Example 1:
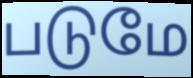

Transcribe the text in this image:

படுமே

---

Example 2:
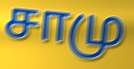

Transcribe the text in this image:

சாமு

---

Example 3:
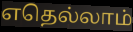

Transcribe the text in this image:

எதெல்லாம்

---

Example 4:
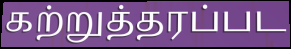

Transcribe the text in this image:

கற்றுத்தரப்பட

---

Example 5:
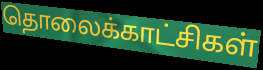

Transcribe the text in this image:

தொலைக்காட்சிகள்